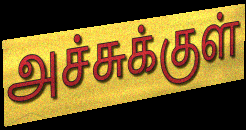
அச்சுக்குள்